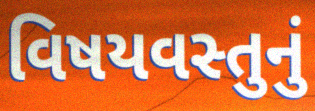
વિષયવસ્તુનું